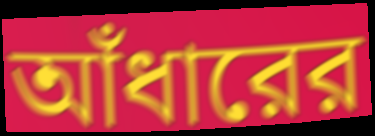
আঁধারের